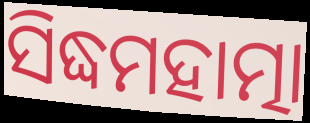
ସିଦ୍ଧମହାତ୍ମା